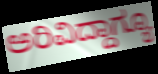
ಅರಿವಿದ್ದಾಗ್ಯೂ